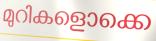
മുറികളൊക്കെ